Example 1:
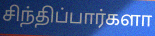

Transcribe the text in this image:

சிந்திப்பார்களா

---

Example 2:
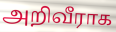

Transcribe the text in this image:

அறிவீராக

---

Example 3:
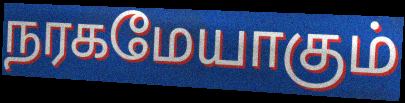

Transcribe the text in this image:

நரகமேயாகும்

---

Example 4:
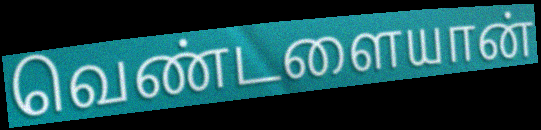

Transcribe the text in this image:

வெண்டளையான்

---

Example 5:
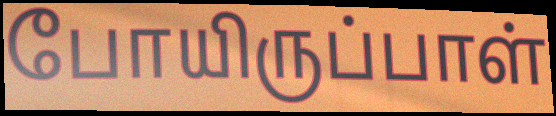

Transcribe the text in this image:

போயிருப்பாள்